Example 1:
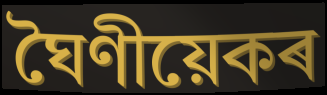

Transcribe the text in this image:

ঘৈণীয়েকৰ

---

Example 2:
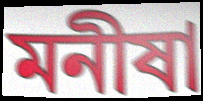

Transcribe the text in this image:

মনীষা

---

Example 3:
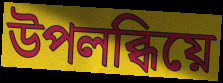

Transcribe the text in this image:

উপলব্ধিয়ে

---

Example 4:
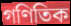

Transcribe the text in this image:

গণিতিক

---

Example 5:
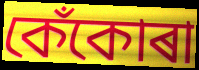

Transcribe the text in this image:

কেঁকোৰা